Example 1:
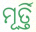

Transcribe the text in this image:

ମୂର୍ତ୍ତି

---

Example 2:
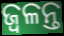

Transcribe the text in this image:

ଜ୍ବଳନ୍ତ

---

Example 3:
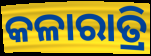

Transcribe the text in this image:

କଳାରାତ୍ରି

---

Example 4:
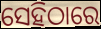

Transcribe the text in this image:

ସେହିଠାରେ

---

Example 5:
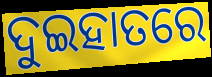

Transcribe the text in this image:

ଦୁଇହାତରେ